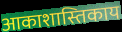
आकाशास्तिकाय